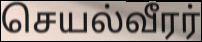
செயல்வீரர்